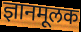
ज्ञानमूलक